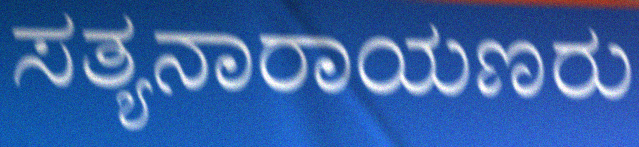
ಸತ್ಯನಾರಾಯಣರು